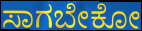
ಸಾಗಬೇಕೋ